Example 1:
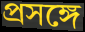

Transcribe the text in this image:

প্রসঙ্গে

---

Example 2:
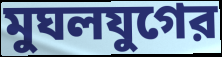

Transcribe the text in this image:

মুঘলযুগের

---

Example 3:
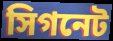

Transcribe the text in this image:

সিগনেট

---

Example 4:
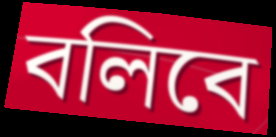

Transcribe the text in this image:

বলিবে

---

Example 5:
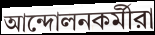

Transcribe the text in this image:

আন্দোলনকর্মীরা